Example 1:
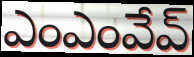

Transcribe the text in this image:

ఎంఎంవేవ్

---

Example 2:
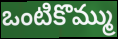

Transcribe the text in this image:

ఒంటికొమ్ము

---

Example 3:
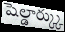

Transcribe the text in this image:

షెల్డార్క్కు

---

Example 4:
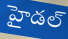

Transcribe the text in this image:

హైడల్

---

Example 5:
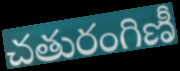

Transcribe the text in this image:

చతురంగిణీ